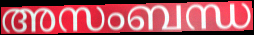
അസംബന്ധ